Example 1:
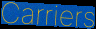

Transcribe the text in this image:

Carriers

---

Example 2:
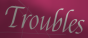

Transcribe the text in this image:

Troubles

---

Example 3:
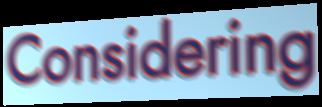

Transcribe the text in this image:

Considering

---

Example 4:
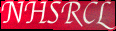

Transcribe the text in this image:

NHSRCL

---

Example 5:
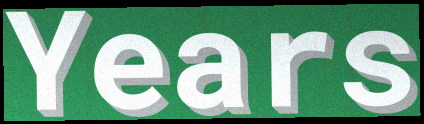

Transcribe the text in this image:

Years